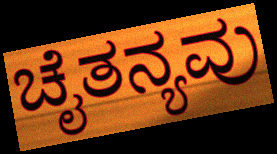
ಚೈತನ್ಯವು